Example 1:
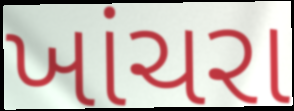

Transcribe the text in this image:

ખાંચરા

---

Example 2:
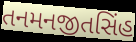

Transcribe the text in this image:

તનમનજીતસિંહ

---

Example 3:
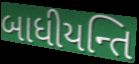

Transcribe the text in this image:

બાધીયન્તિ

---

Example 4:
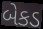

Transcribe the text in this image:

બેકડ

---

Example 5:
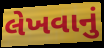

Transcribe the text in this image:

લેખવાનું